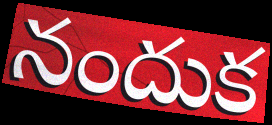
నందుక